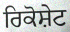
ਰਿਕੋਸ਼ੇਟ